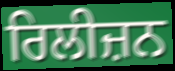
ਰਿਲੀਜ਼ਨ